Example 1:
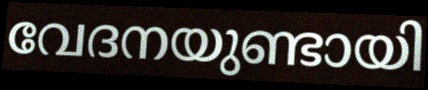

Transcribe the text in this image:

വേദനയുണ്ടായി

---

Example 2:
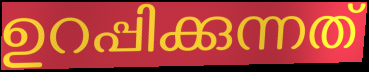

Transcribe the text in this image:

ഉറപ്പിക്കുന്നത്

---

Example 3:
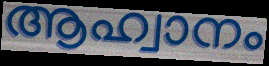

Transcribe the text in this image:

ആഹ്വാനം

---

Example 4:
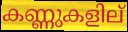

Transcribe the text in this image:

കണ്ണുകളില്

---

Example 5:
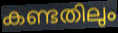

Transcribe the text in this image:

കണ്ടതിലും